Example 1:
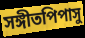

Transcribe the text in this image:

সঙ্গীতপিপাসু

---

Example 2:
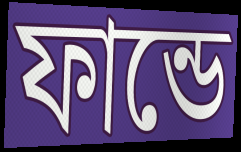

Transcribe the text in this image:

ফান্ডে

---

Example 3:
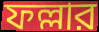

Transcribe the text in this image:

ফল্লার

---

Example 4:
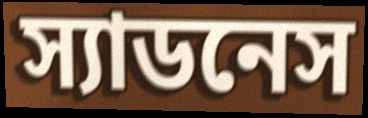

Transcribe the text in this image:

স্যাডনেস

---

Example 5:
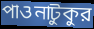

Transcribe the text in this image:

পাওনাটুকুর